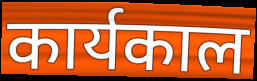
कार्यकाल